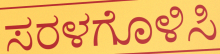
ಸರಳಗೊಳಿಸಿ